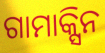
ଗାମାକ୍ସିନ